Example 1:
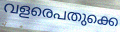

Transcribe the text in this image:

വളരെപതുക്കെ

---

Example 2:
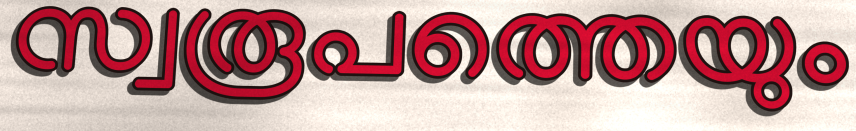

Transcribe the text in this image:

സ്വരൂപത്തെയും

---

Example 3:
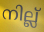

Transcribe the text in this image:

നില്ല്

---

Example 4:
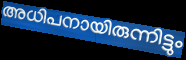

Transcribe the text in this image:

അധിപനായിരുന്നിട്ടും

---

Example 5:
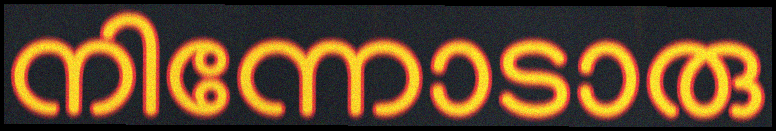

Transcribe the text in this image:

നിന്നോടാരു